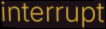
interrupt